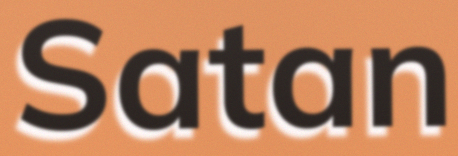
Satan